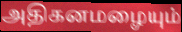
அதிகனமழையும்